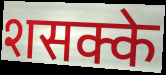
शसक्के